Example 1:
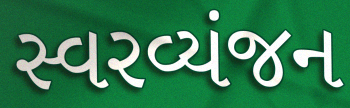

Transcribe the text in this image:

સ્વરવ્યંજન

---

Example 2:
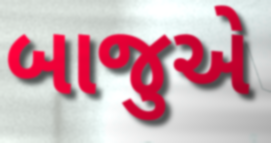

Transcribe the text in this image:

બાજુએ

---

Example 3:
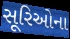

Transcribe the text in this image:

સૂરિઓના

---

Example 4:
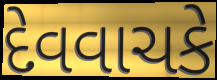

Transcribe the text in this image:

દેવવાચકે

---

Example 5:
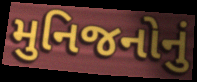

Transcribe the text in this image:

મુનિજનોનું